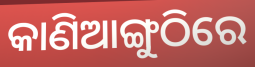
କାଣିଆଙ୍ଗୁଠିରେ